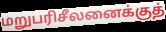
மறுபரிசீலனைக்குத்